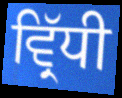
ਵ੍ਰਿੱਧੀ